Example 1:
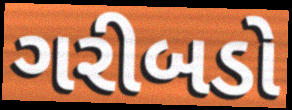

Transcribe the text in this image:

ગરીબડો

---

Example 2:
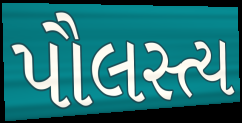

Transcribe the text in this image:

પૌલસ્ત્ય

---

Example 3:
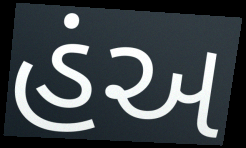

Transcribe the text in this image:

હંઅ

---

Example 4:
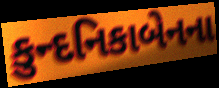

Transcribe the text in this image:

કુન્દનિકાબેનના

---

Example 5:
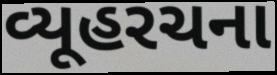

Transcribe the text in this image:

વ્યૂહરચના